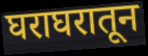
घराघरातून